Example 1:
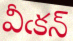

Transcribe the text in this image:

వీఁకన్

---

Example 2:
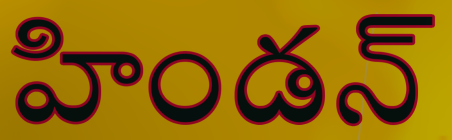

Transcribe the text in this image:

హిండన్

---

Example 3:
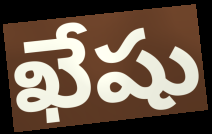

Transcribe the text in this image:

ఖేషు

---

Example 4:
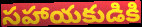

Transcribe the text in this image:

సహాయకుడికి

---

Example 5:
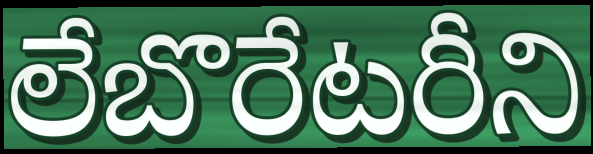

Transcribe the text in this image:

లేబొరేటరీని